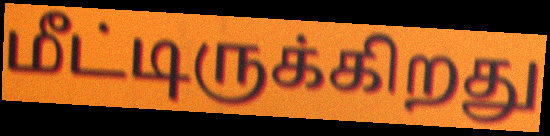
மீட்டிருக்கிறது